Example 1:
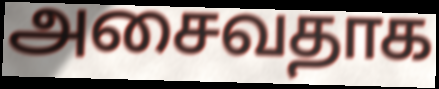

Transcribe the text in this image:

அசைவதாக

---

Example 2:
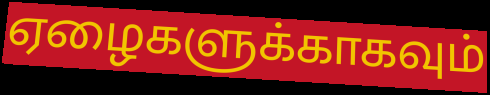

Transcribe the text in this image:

ஏழைகளுக்காகவும்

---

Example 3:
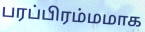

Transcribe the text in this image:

பரப்பிரம்மமாக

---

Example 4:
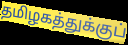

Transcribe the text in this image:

தமிழகத்துக்குப்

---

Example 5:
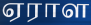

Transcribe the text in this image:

ஏராள